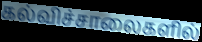
கல்விச்சாலைகளில்